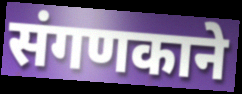
संगणकाने